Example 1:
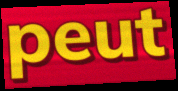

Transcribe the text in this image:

peut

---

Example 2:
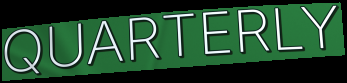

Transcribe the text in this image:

QUARTERLY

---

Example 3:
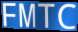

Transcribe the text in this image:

FMTC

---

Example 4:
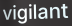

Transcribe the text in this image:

vigilant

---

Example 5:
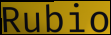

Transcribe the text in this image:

Rubio